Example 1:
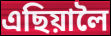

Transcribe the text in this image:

এছিয়ালৈ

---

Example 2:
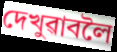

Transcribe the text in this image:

দেখুৱাবলৈ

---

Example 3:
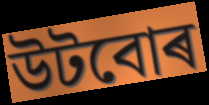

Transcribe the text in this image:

উটবোৰ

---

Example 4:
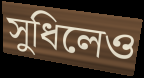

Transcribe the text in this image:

সুধিলেও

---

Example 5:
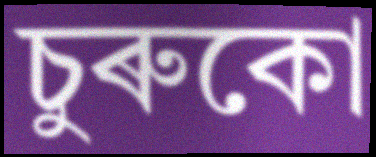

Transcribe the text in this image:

চুৰুকো